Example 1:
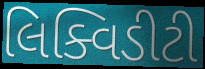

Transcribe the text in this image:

લિક્વિડીટી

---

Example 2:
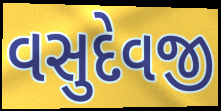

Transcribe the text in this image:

વસુદેવજી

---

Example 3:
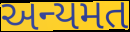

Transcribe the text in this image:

અન્યમત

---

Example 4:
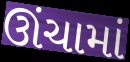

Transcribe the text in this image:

ઊંચામાં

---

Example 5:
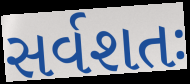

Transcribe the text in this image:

સર્વશતઃ